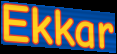
Ekkar